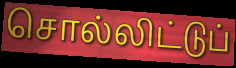
சொல்லிட்டுப்